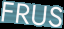
FRUS